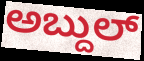
ಅಬ್ದುಲ್